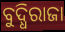
ବୁଦ୍ଧିରାଜା